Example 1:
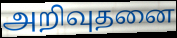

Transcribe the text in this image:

அறிவுதனை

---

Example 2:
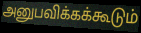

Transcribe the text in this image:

அனுபவிக்கக்கூடும்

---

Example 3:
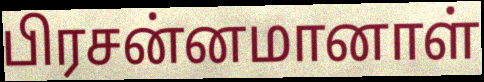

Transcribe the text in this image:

பிரசன்னமானாள்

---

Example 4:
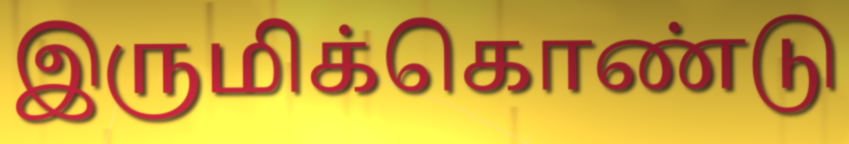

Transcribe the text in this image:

இருமிக்கொண்டு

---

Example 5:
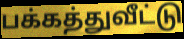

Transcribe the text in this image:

பக்கத்துவீட்டு